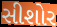
સીશોર